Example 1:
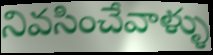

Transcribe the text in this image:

నివసించేవాళ్ళు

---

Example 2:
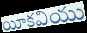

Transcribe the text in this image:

యీకవియు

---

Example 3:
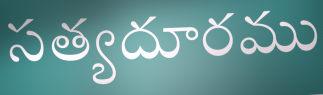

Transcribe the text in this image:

సత్యదూరము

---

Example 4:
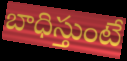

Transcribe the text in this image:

బాధిస్తుంటే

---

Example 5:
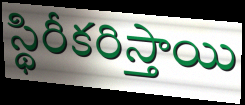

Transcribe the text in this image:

స్థిరీకరిస్తాయి